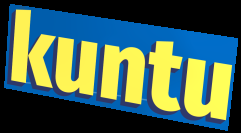
kuntu